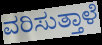
ವರಿಸುತ್ತಾಳೆ